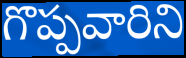
గొప్పవారిని